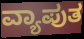
ವ್ಯಾಪುತ